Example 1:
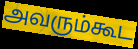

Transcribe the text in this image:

அவரும்கூட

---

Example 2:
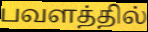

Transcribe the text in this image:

பவளத்தில்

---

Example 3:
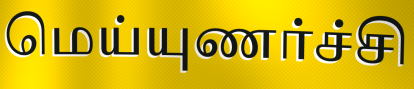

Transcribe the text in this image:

மெய்யுணர்ச்சி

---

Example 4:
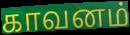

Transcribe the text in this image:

காவனம்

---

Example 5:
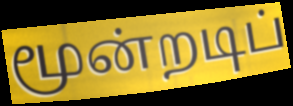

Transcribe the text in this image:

மூன்றடிப்